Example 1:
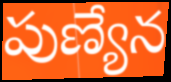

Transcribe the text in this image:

పుణ్యేన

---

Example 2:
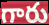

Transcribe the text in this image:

గారు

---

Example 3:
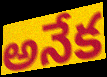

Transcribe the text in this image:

అనేక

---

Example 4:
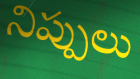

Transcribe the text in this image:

నిప్పులు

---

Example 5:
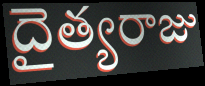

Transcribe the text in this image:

దైత్యరాజు